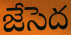
జేసెద